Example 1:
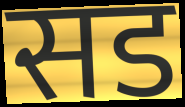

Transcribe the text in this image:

सड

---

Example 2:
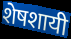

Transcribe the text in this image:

शेषशायी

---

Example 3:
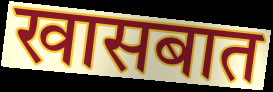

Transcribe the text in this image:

खासबात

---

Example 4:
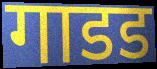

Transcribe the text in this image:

गाडड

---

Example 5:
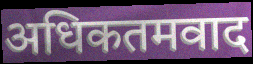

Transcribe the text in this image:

अधिकतमवाद